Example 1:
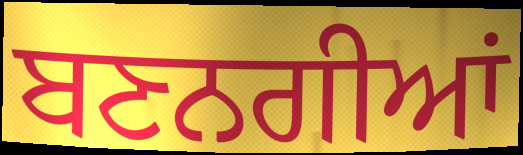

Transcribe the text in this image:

ਬਣਨਗੀਆਂ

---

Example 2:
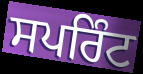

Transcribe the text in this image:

ਸਪਰਿੰਟ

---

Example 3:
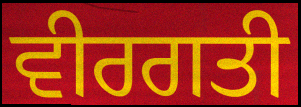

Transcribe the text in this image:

ਵੀਰਗਤੀ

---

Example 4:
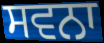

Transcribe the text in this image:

ਸਵਨਾ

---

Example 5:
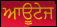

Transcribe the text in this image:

ਆਊਟੇਜ